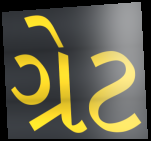
ગ્રેટ